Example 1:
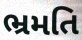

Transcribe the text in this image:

ભ્રમતિ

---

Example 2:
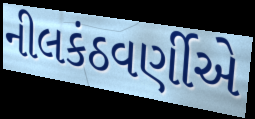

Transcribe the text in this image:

નીલકંઠવર્ણીએ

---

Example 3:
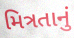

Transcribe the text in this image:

મિત્રતાનું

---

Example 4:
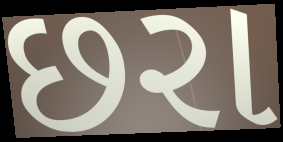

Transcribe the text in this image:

છરા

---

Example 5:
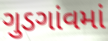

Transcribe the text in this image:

ગુડગાંવમાં